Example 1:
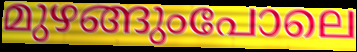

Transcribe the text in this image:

മുഴങ്ങുംപോലെ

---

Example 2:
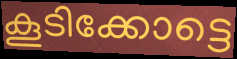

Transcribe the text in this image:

കൂടിക്കോട്ടെ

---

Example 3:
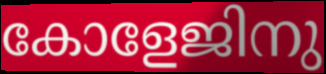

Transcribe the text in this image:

കോളേജിനു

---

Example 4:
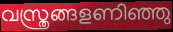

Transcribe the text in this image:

വസ്ത്രങ്ങളണിഞ്ഞു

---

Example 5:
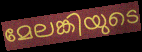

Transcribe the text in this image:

മേലങ്കിയുടെ